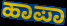
ಹಾಪಾ